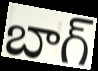
బాగ్